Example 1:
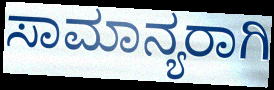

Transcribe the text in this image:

ಸಾಮಾನ್ಯರಾಗಿ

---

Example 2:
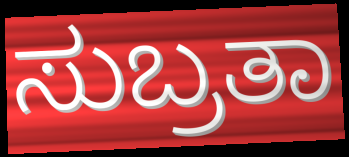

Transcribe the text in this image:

ಸುಬ್ರತಾ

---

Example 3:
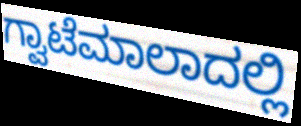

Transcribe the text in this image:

ಗ್ವಾಟೆಮಾಲಾದಲ್ಲಿ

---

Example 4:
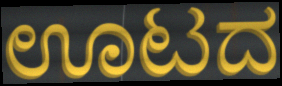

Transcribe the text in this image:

ಊಟದ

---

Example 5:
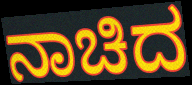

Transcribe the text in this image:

ನಾಚಿದ